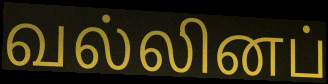
வல்லினப்